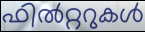
ഫിൽറ്ററുകൾ